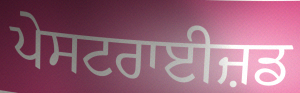
ਪੇਸਟਰਾਈਜ਼ਡ